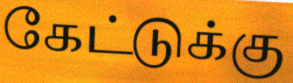
கேட்டுக்கு